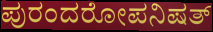
ಪುರಂದರೋಪನಿಷತ್